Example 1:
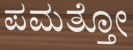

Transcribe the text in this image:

ಪಮತ್ತೋ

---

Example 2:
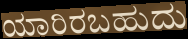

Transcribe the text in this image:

ಯಾರಿರಬಹುದು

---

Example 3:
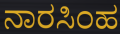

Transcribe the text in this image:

ನಾರಸಿಂಹ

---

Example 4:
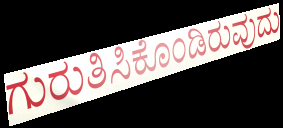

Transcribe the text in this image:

ಗುರುತಿಸಿಕೊಂಡಿರುವುದು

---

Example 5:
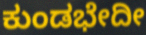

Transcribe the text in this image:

ಕುಂಡಭೇದೀ